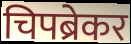
चिपब्रेकर